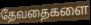
தேவதைகளை